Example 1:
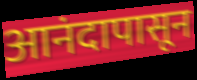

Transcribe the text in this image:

आनंदापासून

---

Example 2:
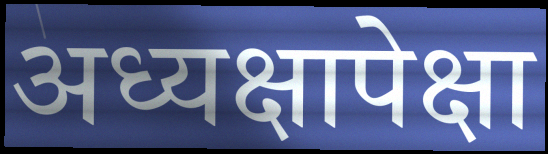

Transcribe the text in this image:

अध्यक्षापेक्षा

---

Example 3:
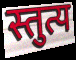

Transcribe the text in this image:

स्तुत्य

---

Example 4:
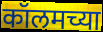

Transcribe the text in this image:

कॉलमच्या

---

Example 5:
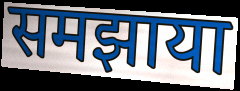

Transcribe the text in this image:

समझाया